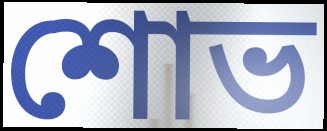
শোভ